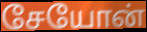
சேயோன்